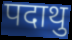
पदाथु